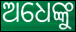
ଅଧେଙ୍କୁ